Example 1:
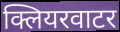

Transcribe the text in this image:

क्लियरवाटर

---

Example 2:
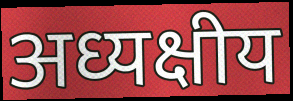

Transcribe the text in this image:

अध्यक्षीय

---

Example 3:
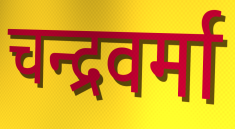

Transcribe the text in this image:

चन्द्रवर्मा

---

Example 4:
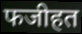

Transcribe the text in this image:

फजीहत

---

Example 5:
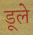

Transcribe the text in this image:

डूले